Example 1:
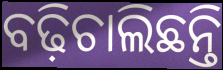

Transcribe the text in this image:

ବଢ଼ିଚାଲିଛନ୍ତି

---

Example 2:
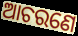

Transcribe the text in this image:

ଆଚରଣେ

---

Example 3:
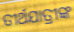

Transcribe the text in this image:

ତୀର୍ଥଯାତ୍ରୀଙ୍କ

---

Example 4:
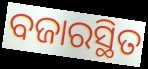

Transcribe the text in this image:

ବଜାରସ୍ଥିତ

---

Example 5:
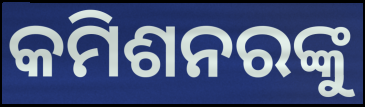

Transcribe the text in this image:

କମିଶନରଙ୍କୁ